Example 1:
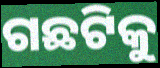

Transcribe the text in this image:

ଗଛଟିକୁ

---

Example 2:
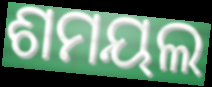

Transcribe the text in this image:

ଶମୟଲ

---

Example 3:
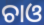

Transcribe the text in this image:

ଚାଓ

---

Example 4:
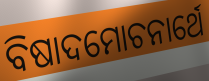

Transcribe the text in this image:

ବିଷାଦମୋଚନାର୍ଥେ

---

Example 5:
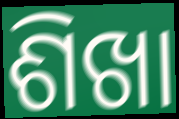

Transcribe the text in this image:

ଶିଖା